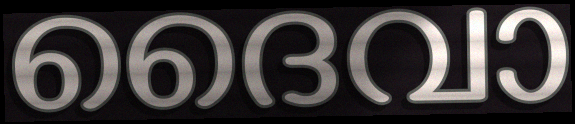
ദൈവാ